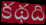
కథది